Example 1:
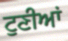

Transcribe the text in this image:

ਟੁਣੀਆਂ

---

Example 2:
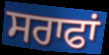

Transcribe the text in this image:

ਸਰਾਫਾਂ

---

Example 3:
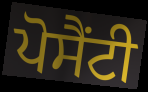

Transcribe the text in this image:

ਪੋਸੈਂਟੀ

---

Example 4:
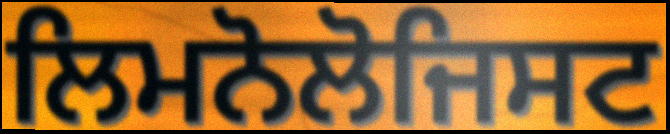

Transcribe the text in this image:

ਲਿਮਨੋਲੋਜਿਸਟ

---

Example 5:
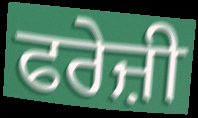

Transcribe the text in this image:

ਫਰੇਜ਼ੀ